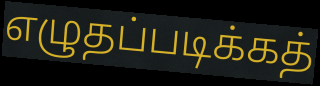
எழுதப்படிக்கத்